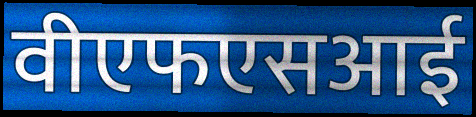
वीएफएसआई